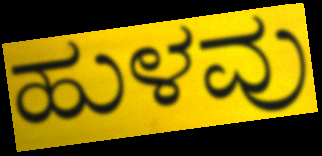
ಹುಳವು